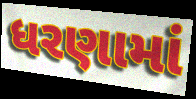
ધરણામાં